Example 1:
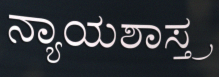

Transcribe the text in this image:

ನ್ಯಾಯಶಾಸ್ತ್ರ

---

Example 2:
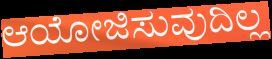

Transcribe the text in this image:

ಆಯೋಜಿಸುವುದಿಲ್ಲ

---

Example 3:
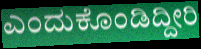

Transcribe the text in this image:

ಎಂದುಕೊಂಡಿದ್ದೀರಿ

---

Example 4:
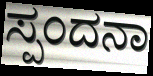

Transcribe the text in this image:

ಸ್ಪಂದನಾ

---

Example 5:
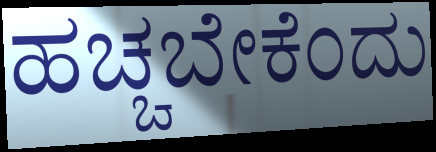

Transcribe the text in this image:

ಹಚ್ಚಬೇಕೆಂದು